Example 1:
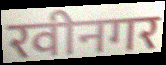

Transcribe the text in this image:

रवीनगर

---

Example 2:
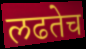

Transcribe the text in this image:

लढतेच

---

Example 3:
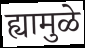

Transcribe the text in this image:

ह्यामुळे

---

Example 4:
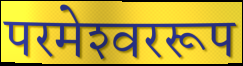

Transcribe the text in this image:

परमेश्वररूप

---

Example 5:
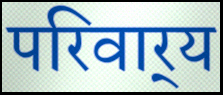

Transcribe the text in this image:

परिवार्य